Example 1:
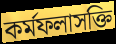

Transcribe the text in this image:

কর্মফলাসক্তি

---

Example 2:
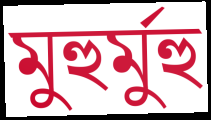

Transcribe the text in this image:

মুহুর্মুহু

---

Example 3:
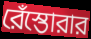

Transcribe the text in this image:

রেঁস্তোরার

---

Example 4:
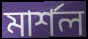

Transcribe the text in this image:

মার্শল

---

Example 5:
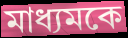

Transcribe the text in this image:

মাধ্যমকে